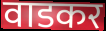
वाडकर